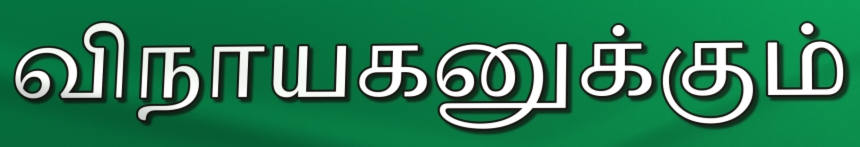
விநாயகனுக்கும்